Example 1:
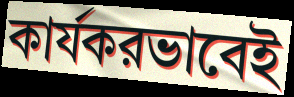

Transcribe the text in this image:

কার্যকরভাবেই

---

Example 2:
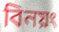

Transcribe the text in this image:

বিনয়ং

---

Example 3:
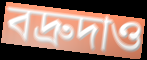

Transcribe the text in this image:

বদ্রুদাও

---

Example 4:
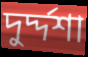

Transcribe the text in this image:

দুর্দ্দশা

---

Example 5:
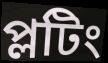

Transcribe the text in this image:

প্লটিং